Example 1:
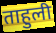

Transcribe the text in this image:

ताहुली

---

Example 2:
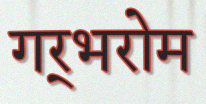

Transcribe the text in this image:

गर्भरोम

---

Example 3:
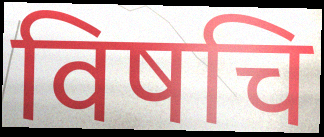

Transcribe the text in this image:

विषचि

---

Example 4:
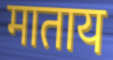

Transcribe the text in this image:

माताय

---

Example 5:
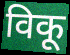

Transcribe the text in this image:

विकू